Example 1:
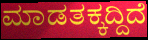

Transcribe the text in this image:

ಮಾಡತಕ್ಕದ್ದಿದೆ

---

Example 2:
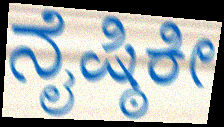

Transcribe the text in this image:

ನೈಷ್ಠಿಕೀ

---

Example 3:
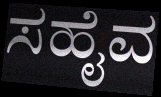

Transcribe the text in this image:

ಸಹೈವ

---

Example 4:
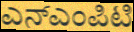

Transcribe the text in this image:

ಎನ್ಎಂಪಿಟಿ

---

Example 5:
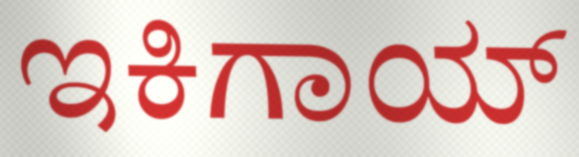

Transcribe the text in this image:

ಇಕಿಗಾಯ್